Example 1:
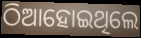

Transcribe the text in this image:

ଠିଆହୋଇଥିଲେ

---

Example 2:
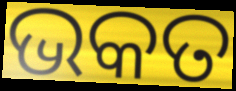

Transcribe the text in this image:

ଭକତ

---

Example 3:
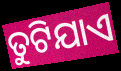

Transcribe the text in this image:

ତୁଟିଯାଏ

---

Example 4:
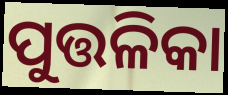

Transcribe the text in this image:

ପୁତ୍ତଳିକା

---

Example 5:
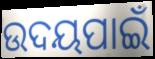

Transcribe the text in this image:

ଉଦୟପାଇଁ